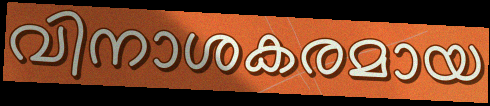
വിനാശകരമായ